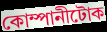
কোম্পানীটোক